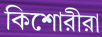
কিশোরীরা